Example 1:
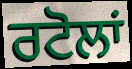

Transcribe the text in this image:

ਰਟੋਲਾਂ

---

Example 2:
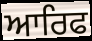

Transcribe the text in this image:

ਆਰਿਫ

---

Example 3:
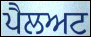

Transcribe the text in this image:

ਪੈਲਅਟ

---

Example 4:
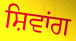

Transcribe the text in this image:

ਸ਼ਿਵਾਂਗ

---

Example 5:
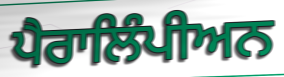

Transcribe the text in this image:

ਪੈਰਾਲਿੰਪੀਅਨ